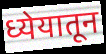
ध्येयातून